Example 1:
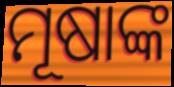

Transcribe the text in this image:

ମୂଷାଙ୍କ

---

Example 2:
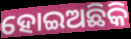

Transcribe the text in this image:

ହୋଇଅଛିକି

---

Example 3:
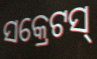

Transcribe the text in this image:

ସକ୍ରେଟସ୍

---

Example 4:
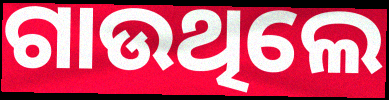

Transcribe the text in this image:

ଗାଉଥିଲେ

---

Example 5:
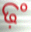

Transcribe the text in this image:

ଢ଼ଂ